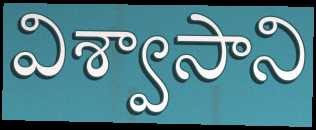
విశ్వాసాని